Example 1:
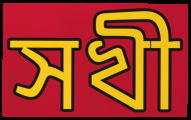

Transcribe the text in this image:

সখী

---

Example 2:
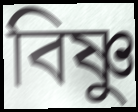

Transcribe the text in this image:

বিষ্ণু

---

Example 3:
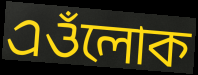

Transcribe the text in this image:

এওঁলোক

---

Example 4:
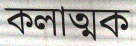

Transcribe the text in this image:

কলাত্মক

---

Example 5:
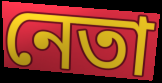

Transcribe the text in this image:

নেতা